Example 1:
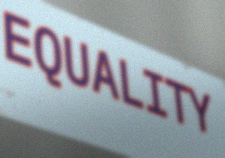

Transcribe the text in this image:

EQUALITY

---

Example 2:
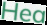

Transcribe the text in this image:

Hea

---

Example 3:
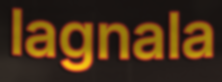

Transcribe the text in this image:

lagnala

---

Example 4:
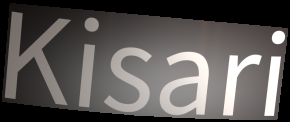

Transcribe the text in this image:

Kisari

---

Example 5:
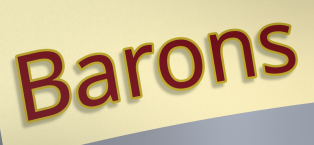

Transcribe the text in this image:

Barons